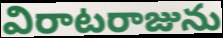
విరాటరాజును